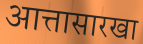
आत्तासारखा